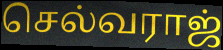
செல்வராஜ்